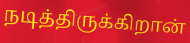
நடித்திருக்கிறான்